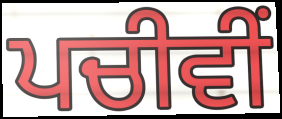
ਪਚੀਵੀਂ